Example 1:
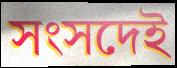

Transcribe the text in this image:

সংসদেই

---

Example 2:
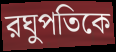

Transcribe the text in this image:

রঘুপতিকে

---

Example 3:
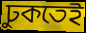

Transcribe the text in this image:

ঢুকতেই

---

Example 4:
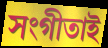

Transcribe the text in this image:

সংগীতাই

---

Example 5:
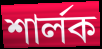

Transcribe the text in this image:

শার্লক